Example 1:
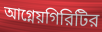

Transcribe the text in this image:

আগ্নেয়গিরিটির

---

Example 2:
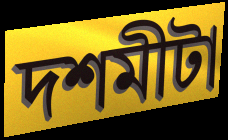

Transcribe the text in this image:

দশমীটা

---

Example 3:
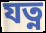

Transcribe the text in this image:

যত্ন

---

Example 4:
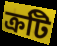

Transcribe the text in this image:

ক্রটি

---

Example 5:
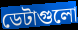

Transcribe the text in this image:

ডেটাগুলো